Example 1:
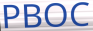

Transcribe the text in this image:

PBOC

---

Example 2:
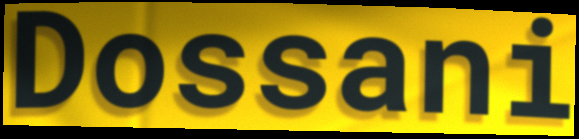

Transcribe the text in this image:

Dossani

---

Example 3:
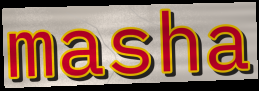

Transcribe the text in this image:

masha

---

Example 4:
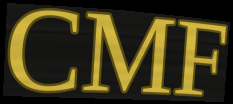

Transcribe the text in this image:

CMF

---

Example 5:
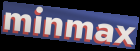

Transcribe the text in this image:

minmax